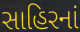
સાહિરનાં